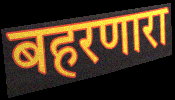
बहरणारा